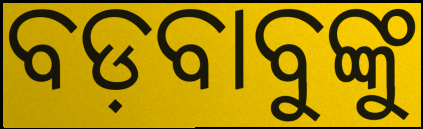
ବଡ଼ବାବୁଙ୍କୁ